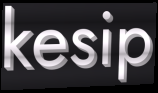
kesip